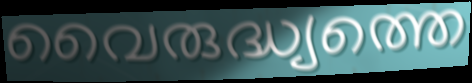
വൈരുദ്ധ്യത്തെ